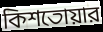
কিশতোয়ার